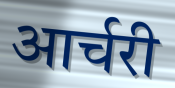
आर्चरी